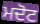
ਮਦੋਟ